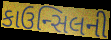
કાઉન્સિલની